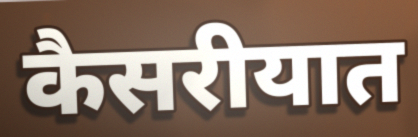
कैसरीयात